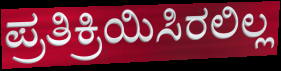
ಪ್ರತಿಕ್ರಿಯಿಸಿರಲಿಲ್ಲ